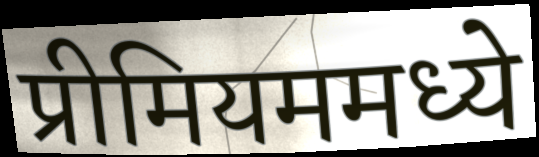
प्रीमियममध्ये